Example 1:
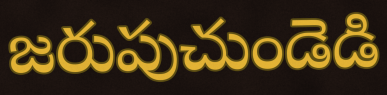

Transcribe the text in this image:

జరుపుచుండెడి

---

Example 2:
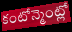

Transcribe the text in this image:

కంటోన్మెంట్లో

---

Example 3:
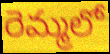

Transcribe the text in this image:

రెమ్మలో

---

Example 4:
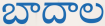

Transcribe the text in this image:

బాదాల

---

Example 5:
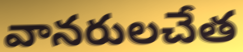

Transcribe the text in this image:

వానరులచేత